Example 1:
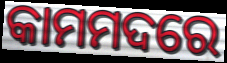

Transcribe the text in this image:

କାମମଦରେ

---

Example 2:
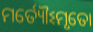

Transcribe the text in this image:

ମର୍ତ୍ୟୌଽମୃତୋ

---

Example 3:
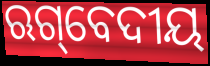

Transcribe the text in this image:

ଋଗ୍‌ବେଦୀୟ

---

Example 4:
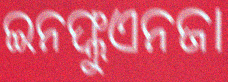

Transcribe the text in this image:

ଇନଫ୍ଲୁଏନଜା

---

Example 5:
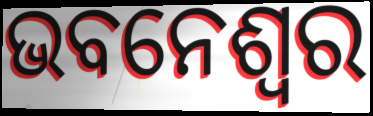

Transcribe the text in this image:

ଭବନେଶ୍ୱର